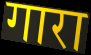
गारा